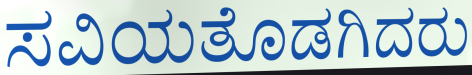
ಸವಿಯತೊಡಗಿದರು